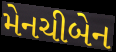
મેનચીબેન